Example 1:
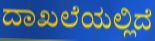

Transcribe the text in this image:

ದಾಖಲೆಯಲ್ಲಿದೆ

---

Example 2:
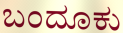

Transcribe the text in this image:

ಬಂದೂಕು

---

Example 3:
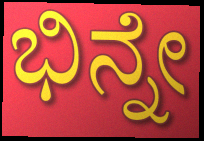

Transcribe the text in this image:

ಭಿನ್ನೇ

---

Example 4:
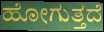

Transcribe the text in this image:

ಹೋಗುತ್ತದೆ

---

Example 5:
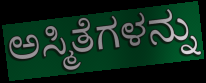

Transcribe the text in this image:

ಅಸ್ಮಿತೆಗಳನ್ನು